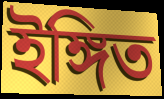
ইঙ্গিত